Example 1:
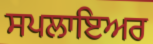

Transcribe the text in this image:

ਸਪਲਾਇਅਰ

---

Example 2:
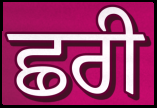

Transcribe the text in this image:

ਛਰੀ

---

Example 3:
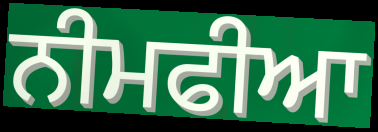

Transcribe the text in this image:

ਨੀਮਫੀਆ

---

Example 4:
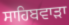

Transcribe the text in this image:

ਸਾਹਿਬਵਾੜਾ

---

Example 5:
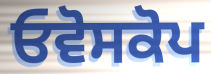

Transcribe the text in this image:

ਓਵੋਸਕੋਪ